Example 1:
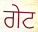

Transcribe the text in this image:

ਗੇਟ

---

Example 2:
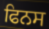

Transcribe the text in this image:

ਫਿਨਸ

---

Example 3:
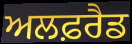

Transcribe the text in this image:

ਅਲਫ਼ਰੈਡ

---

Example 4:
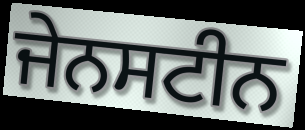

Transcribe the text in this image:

ਜੇਨਸਟੀਨ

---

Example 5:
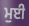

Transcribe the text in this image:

ਮੁਈ